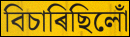
বিচাৰিছিলোঁ